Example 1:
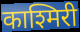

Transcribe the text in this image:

काश्मिरी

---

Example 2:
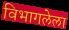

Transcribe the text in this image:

विभागलेला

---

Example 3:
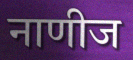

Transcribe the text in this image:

नाणीज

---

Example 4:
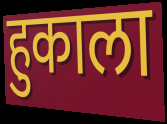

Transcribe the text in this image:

हुकाला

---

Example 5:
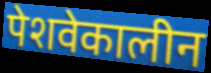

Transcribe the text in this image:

पेशवेकालीन